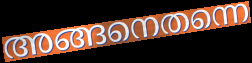
അങ്ങനെതന്നെ